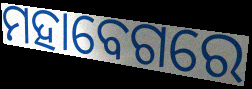
ମହାବେଗରେ